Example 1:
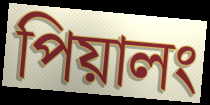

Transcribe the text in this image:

পিয়ালং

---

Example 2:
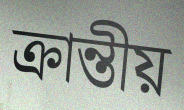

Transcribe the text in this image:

ক্রান্তীয়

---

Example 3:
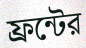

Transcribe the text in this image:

ফ্রন্টের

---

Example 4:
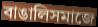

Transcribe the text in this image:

বাঙালিসমাজে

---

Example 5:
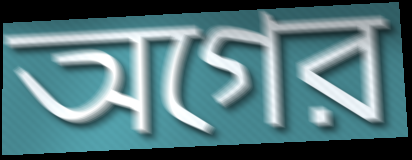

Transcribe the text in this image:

অগের